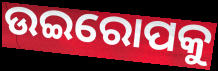
ଉଇରୋପକୁ